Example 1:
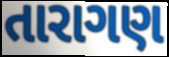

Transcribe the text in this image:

તારાગણ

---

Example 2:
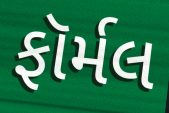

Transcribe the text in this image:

ફૉર્મલ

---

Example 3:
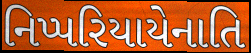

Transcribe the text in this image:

નિપ્પરિયાયેનાતિ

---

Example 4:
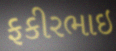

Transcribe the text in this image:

ફકીરભાઇ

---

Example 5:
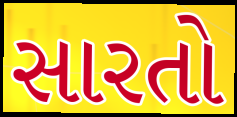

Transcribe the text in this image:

સારતો